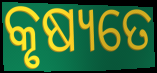
କୃଷ୍ୟତେ